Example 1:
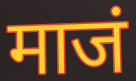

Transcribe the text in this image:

माजं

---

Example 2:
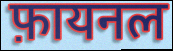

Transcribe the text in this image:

फ़ायनल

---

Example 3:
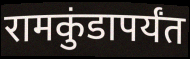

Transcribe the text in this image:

रामकुंडापर्यंत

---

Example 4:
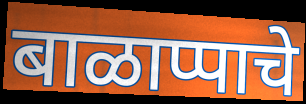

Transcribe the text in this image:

बाळाप्पाचे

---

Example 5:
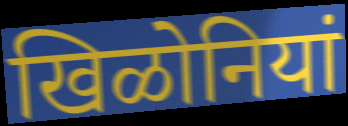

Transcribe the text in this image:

खिळोनियां